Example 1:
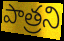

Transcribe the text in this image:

పాత్రని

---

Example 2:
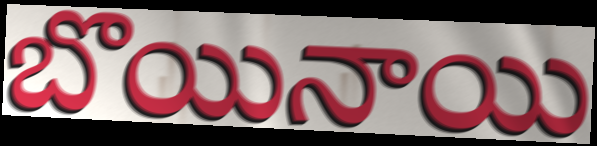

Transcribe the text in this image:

బొయినాయి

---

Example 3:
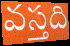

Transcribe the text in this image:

వస్తది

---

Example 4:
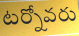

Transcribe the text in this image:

టర్నోవరు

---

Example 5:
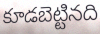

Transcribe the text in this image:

కూడబెట్టినది